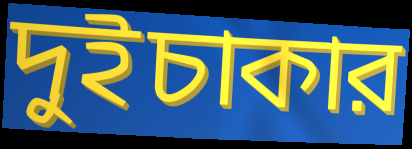
দুইচাকার